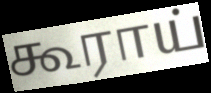
கூராய்